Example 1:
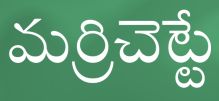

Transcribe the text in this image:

మర్రిచెట్టే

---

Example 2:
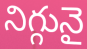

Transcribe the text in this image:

నిగ్గునై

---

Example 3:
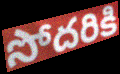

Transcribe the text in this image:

సోదరికి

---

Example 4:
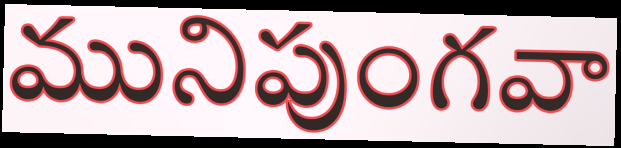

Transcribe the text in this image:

మునిపుంగవా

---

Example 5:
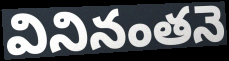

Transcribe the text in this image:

వినినంతనె